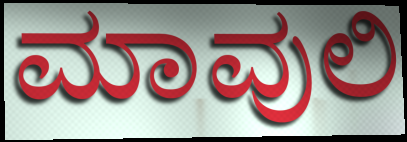
ಮಾವುಲಿ